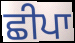
ਛੀਪਾ